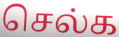
செல்க